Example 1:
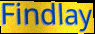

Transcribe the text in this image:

Findlay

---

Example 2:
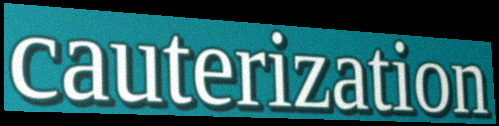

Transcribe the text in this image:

cauterization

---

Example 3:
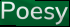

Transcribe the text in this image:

Poesy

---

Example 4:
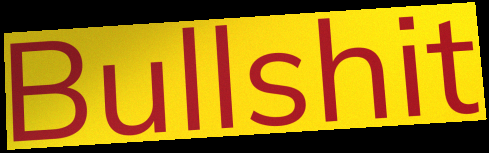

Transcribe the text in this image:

Bullshit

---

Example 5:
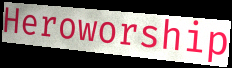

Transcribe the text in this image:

Heroworship